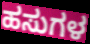
ಹಸುಗಳ